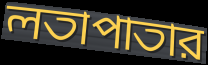
লতাপাতার